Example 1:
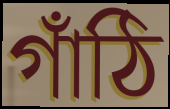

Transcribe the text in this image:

গাঁঠি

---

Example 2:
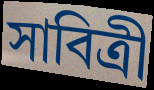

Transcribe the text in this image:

সাবিত্ৰী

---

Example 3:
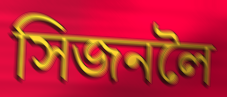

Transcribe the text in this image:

সিজনলৈ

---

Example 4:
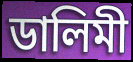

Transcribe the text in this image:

ডালিমী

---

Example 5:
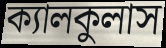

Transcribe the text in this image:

ক্যালকুলাস